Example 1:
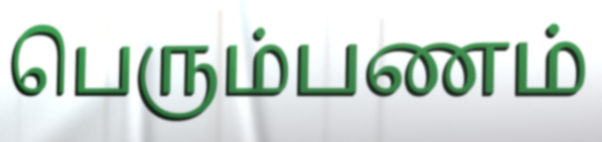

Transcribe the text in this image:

பெரும்பணம்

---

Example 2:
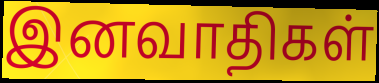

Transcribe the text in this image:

இனவாதிகள்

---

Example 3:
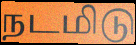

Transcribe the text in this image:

நடமிடு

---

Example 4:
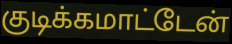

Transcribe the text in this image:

குடிக்கமாட்டேன்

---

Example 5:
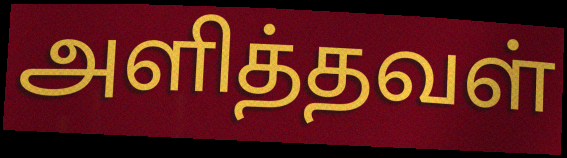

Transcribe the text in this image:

அளித்தவள்